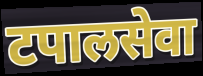
टपालसेवा